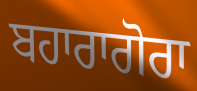
ਬਹਾਰਾਗੋਰਾ